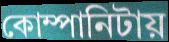
কোম্পানিটায়